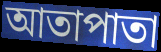
আতাপাতা